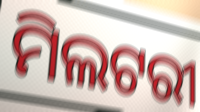
ମିଲଟରୀ